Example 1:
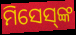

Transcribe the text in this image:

ମିସେସ୍‍ଙ୍କ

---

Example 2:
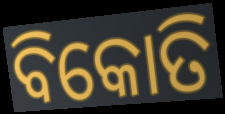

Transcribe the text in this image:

ବିକୋତି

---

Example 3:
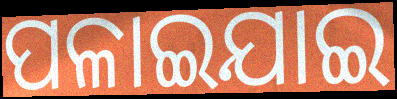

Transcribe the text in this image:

ପଳାଇଯାଇ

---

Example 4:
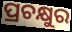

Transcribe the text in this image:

ପ୍ରଚକ୍ଷୁର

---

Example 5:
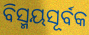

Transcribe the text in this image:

ବିସ୍ମୟସୂର୍ବକ